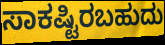
ಸಾಕಷ್ಟಿರಬಹುದು